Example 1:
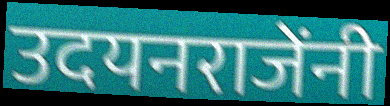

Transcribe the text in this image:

उदयनराजेंनी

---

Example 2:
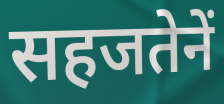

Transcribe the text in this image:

सहजतेनें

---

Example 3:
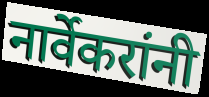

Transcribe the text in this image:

नार्वेकरांनी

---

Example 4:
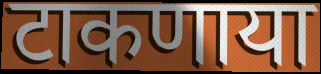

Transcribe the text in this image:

टाकणाया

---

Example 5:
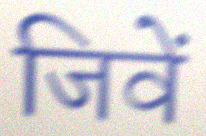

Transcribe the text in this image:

जिवें